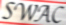
SWAC